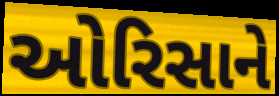
ઓરિસાને